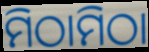
ମିଠାମିଠା